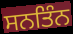
ਸਨਤਿੰਨ